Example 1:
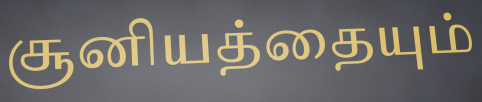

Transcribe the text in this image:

சூனியத்தையும்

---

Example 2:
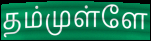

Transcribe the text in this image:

தம்முள்ளே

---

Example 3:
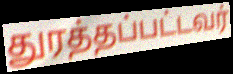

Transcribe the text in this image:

துரத்தப்பட்டவர்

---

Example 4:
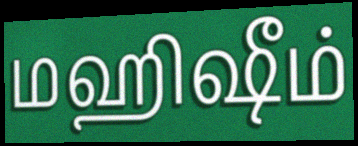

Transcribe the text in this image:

மஹிஷீம்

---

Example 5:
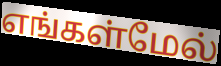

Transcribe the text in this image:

எங்கள்மேல்